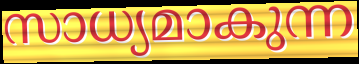
സാധ്യമാകുന്ന